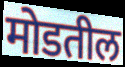
मोडतील